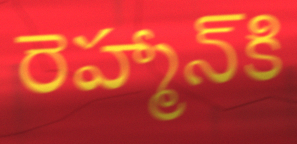
రెహ్మాన్‌కి